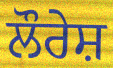
ਲੌਰੇਸ਼